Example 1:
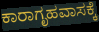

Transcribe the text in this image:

ಕಾರಾಗೃಹವಾಸಕ್ಕೆ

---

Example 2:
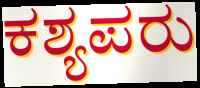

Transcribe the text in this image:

ಕಶ್ಯಪರು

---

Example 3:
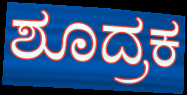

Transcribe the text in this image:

ಶೂದ್ರಕ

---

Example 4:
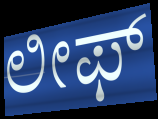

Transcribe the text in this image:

ಲೀಫ್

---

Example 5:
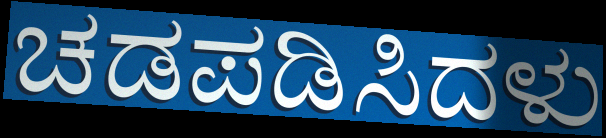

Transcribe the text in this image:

ಚಡಪಡಿಸಿದಳು